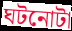
ঘটনোটা